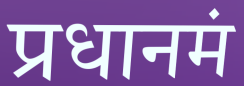
प्रधानमं